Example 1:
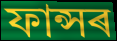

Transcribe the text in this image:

ফান্সৰ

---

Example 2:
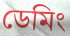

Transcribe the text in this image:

ডেমিং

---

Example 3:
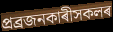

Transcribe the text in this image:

প্ৰব্ৰজনকাৰীসকলৰ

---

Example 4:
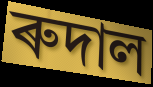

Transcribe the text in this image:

ৰুদাল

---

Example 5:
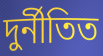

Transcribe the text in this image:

দুৰ্নীতিত